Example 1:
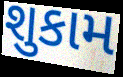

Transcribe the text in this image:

શુકામ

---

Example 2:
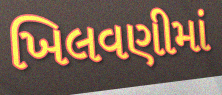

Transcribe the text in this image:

ખિલવણીમાં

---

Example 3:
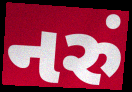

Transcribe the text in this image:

નરું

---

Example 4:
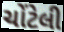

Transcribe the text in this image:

ચોંટેલી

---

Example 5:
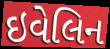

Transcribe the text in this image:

ઇવેલિન